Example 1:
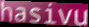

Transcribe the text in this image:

hasivu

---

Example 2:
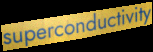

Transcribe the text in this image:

superconductivity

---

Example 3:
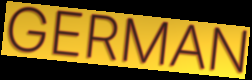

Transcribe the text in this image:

GERMAN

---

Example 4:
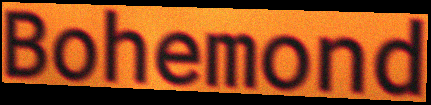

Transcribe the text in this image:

Bohemond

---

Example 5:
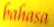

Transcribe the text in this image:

bahasa